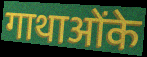
गाथाओंके